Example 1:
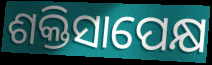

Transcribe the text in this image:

ଶକ୍ତିସାପେକ୍ଷ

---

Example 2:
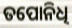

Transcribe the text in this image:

ତପୋନିଧି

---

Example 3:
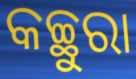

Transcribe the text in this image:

କଚ୍ଛୁରା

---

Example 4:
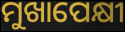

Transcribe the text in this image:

ମୁଖାପେକ୍ଷୀ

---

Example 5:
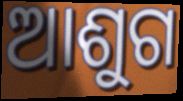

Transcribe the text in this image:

ଆଶୁଗ